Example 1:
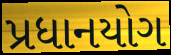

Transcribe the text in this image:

પ્રધાનયોગ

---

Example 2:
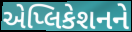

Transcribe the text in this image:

એપ્લિકેશનને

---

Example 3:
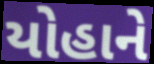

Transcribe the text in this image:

યોહાને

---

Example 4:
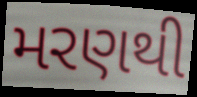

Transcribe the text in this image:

મરણથી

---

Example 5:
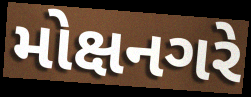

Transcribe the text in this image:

મોક્ષનગરે